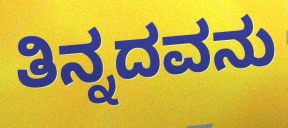
ತಿನ್ನದವನು